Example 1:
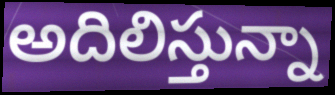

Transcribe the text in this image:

అదిలిస్తున్నా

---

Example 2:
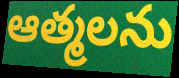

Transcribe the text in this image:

ఆత్మలను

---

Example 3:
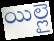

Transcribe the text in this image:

యిల్లై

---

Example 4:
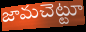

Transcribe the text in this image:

జామచెట్టూ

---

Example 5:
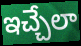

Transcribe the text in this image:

ఇచ్చేలా